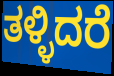
ತಳ್ಳಿದರೆ